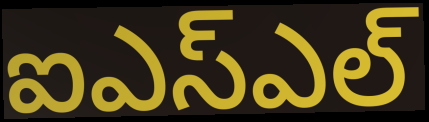
ఐఎస్ఎల్